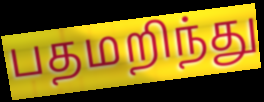
பதமறிந்து